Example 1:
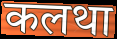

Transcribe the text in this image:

कलथा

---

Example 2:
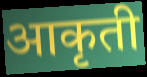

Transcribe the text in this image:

आकृती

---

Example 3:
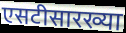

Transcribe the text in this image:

एसटीसारख्या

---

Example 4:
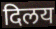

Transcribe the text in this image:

दिलय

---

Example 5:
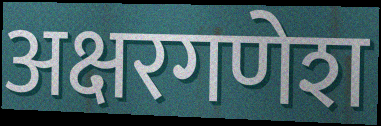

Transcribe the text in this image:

अक्षरगणेश